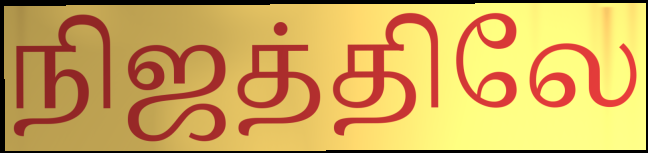
நிஜத்திலே